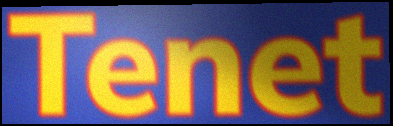
Tenet